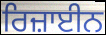
ਰਿਜ਼ਾਈਨ